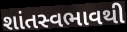
શાંતસ્વભાવથી